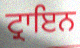
ਟ੍ਰਾਇਨ